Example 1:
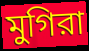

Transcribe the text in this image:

মুগিরা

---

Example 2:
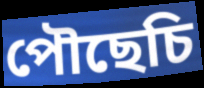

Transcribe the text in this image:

পৌছেচি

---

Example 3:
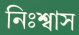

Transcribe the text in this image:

নিঃশ্বাস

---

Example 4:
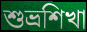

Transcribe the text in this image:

শুভ্রশিখা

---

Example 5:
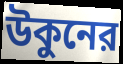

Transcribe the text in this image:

উকুনের